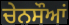
ਚੇਨਸੌਆਂ